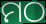
ମଠ